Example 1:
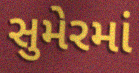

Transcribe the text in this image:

સુમેરમાં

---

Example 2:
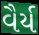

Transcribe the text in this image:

વૈર્ય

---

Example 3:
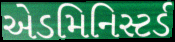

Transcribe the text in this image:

એડમિનિસ્ટર્ડ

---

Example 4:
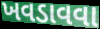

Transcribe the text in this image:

ખવડાવવા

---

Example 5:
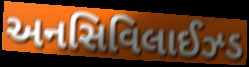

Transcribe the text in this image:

અનસિવિલાઈઝ્ડ